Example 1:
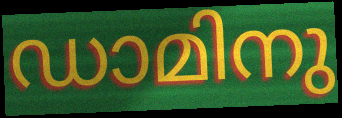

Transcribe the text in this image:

ഡാമിനു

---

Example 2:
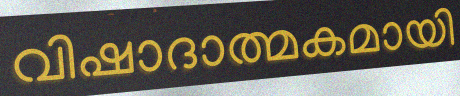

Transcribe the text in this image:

വിഷാദാത്മകമായി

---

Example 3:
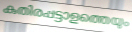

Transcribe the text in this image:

കുതിരപ്പട്ടാളത്തെയും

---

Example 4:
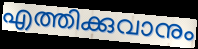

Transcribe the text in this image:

എത്തിക്കുവാനും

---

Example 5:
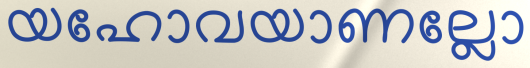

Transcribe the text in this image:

യഹോവയാണല്ലോ